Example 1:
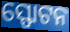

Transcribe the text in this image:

ସ୍ଫୋଟନ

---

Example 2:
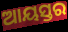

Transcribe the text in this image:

ଆୟସ୍ତର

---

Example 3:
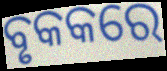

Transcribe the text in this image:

ବୃକକରେ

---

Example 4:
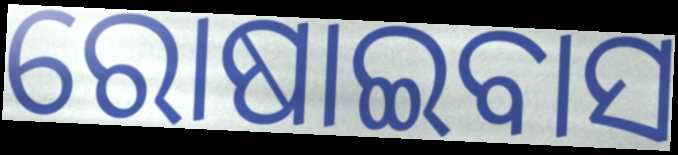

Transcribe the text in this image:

ରୋଷାଇବାସ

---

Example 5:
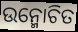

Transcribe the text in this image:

ଉନ୍ମୋଚିତ